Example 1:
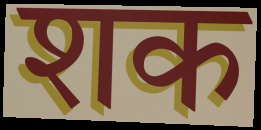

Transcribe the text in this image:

शक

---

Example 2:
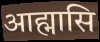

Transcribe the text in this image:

आह्मासि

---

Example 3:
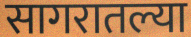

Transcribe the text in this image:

सागरातल्या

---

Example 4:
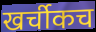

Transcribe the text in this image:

खर्चीकच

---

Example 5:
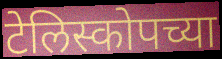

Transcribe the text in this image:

टेलिस्कोपच्या